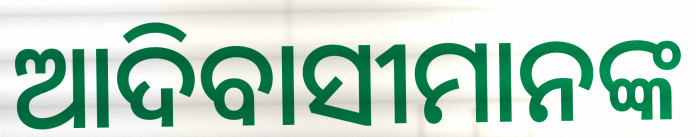
ଆଦିବାସୀମାନଙ୍କ